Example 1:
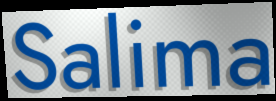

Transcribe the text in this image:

Salima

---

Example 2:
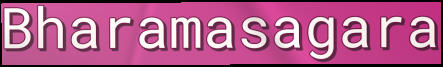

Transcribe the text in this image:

Bharamasagara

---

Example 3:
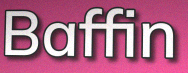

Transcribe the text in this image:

Baffin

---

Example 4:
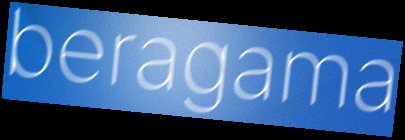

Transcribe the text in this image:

beragama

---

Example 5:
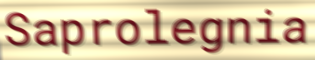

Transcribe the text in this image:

Saprolegnia